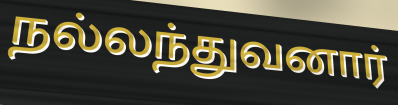
நல்லந்துவனார்